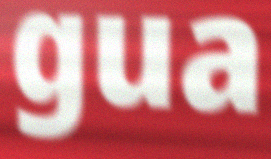
gua